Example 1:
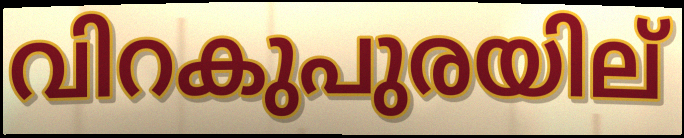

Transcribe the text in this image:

വിറകുപുരയില്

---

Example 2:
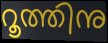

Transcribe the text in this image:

റൂത്തിനു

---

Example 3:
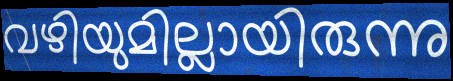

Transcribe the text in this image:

വഴിയുമില്ലായിരുന്നു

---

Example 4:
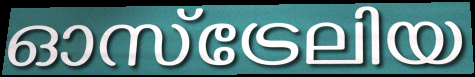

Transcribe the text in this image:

ഓസ്ട്രേലിയ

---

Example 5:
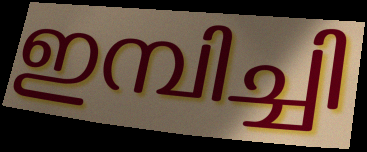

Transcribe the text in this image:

ഇമ്പിച്ചി